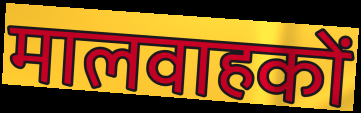
मालवाहकों